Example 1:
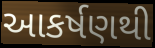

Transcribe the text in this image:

આકર્ષણથી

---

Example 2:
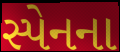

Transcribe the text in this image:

સ્પેનના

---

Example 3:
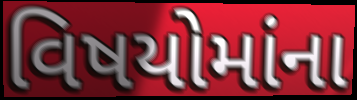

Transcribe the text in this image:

વિષયોમાંના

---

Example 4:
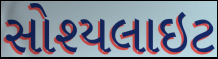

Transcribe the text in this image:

સોશ્યલાઇટ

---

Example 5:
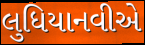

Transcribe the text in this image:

લુધિયાનવીએ